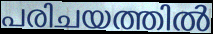
പരിചയത്തിൽ